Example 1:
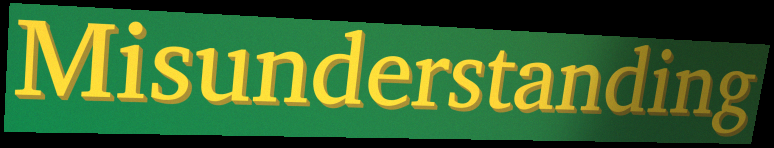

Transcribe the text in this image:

Misunderstanding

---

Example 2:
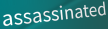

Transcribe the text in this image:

assassinated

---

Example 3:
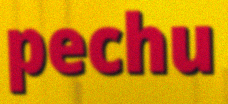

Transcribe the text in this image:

pechu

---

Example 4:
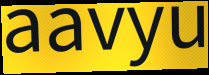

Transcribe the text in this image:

aavyu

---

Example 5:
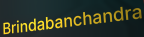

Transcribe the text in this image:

Brindabanchandra